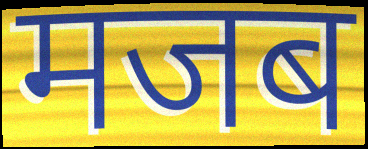
मजब